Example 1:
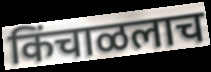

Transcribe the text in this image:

किंचाळलाच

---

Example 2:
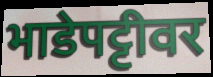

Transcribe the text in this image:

भाडेपट्टीवर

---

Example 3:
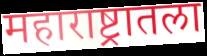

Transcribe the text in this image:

महाराष्ट्रातला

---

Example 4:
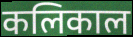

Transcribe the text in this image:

कलिकाल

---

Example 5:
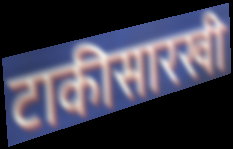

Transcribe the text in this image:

टाकीसारखी